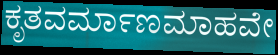
ಕೃತವರ್ಮಾಣಮಾಹವೇ